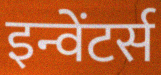
इन्वेंटर्स